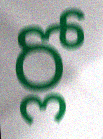
ర్లో